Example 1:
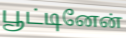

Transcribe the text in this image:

பூட்டினேன்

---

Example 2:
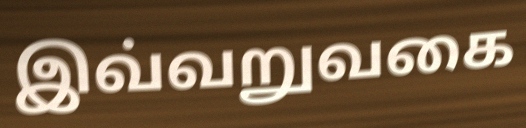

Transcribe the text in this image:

இவ்வறுவகை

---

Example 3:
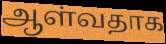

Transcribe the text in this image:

ஆள்வதாக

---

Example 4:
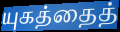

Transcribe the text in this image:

யுகத்தைத்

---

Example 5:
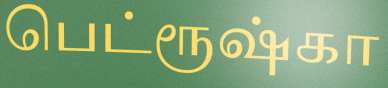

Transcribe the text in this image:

பெட்ரூஷ்கா